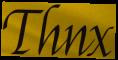
Thnx